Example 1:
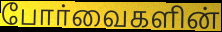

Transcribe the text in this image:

போர்வைகளின்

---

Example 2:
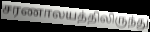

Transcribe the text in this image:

சரணாலயத்திலிருந்து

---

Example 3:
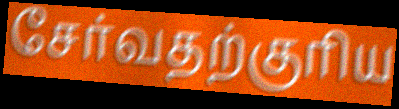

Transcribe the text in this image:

சேர்வதற்குரிய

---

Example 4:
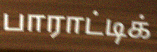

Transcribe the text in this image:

பாராட்டிக்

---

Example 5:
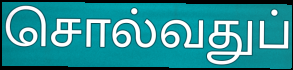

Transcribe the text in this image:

சொல்வதுப்